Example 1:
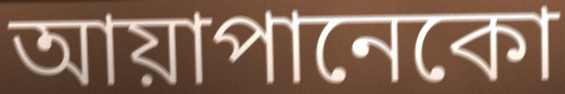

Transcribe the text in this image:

আয়াপানেকো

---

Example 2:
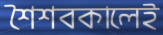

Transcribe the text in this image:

শৈশবকালেই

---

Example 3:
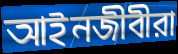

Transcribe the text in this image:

আইনজীবীরা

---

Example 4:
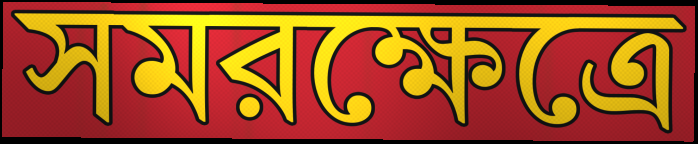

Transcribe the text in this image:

সমরক্ষেত্রে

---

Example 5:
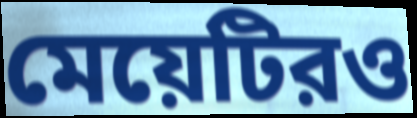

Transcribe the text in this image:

মেয়েটিরও